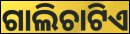
ଗାଲିଚାଟିଏ